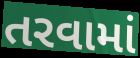
તરવામાં